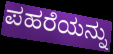
ಪಹರೆಯನ್ನು